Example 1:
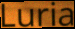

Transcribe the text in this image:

Luria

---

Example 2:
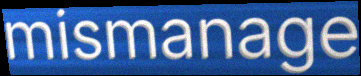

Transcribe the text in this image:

mismanage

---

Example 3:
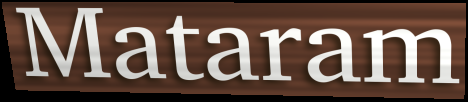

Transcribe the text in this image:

Mataram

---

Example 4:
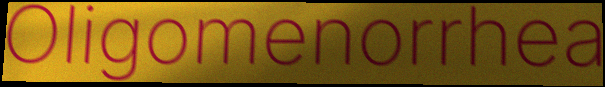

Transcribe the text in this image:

Oligomenorrhea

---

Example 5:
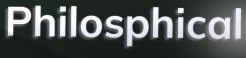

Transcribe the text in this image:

Philosphical